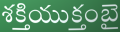
శక్తియుక్తంబై